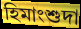
হিমাংশুদা